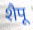
शैपू